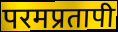
परमप्रतापी